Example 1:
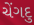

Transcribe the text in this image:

ચેંગદુ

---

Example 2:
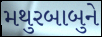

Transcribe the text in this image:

મથુરબાબુને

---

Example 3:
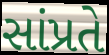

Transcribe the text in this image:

સાંપ્રતે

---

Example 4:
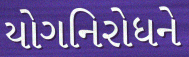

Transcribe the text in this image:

યોગનિરોધને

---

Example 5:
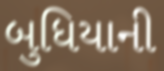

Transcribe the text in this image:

બુધિયાની